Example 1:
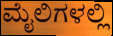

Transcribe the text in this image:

ಮೈಲಿಗಳಲ್ಲಿ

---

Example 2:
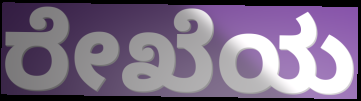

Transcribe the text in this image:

ರೇಖೆಯ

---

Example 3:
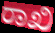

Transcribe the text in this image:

ರಾಖಿ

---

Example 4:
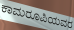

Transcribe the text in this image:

ಕಾಮರೂಪಿಯವರ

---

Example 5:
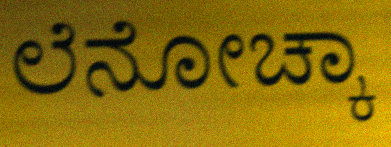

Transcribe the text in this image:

ಲೆನೋಚ್ಕಾ